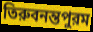
তিরুবনন্তপুরম